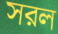
সরল